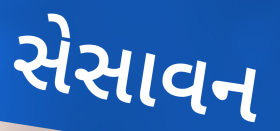
સેસાવન